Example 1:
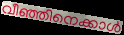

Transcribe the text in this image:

വീഞ്ഞിനെക്കാൾ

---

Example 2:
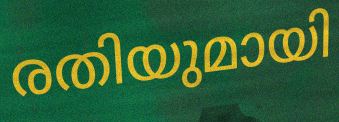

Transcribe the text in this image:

രതിയുമായി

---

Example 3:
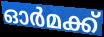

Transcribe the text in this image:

ഓർമക്ക്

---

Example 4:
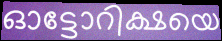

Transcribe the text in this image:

ഓട്ടോറിക്ഷയെ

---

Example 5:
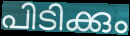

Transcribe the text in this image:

പിടിക്കും